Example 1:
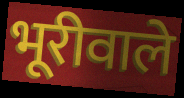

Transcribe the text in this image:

भूरीवाले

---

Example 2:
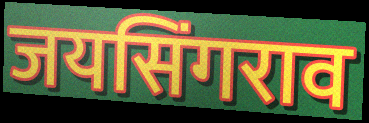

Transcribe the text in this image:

जयसिंगराव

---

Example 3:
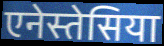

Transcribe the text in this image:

एनेस्तेसिया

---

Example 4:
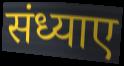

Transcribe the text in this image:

संध्याए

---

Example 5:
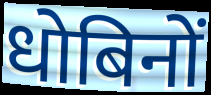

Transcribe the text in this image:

धोबिनों